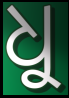
ଧୁ